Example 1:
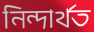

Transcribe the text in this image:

নিন্দাৰ্থত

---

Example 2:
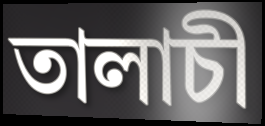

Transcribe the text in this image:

তালাচী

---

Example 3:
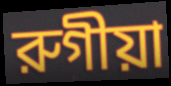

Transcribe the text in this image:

ৰুগীয়া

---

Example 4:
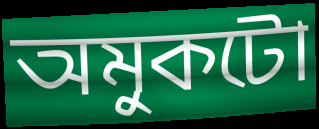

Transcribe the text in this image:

অমুকটো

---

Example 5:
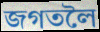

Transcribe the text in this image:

জগতলৈ